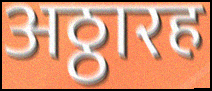
अठ्ठारह